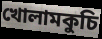
খোলামকুচি